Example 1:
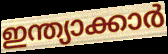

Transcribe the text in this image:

ഇന്ത്യാക്കാർ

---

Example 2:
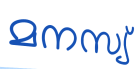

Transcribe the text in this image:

മനസ്യ്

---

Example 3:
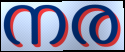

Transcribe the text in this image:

നര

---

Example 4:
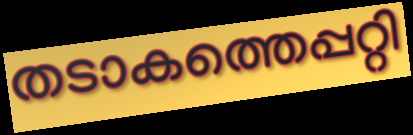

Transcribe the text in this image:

തടാകത്തെപ്പറ്റി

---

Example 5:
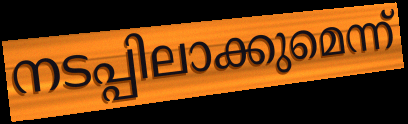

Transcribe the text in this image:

നടപ്പിലാക്കുമെന്ന്